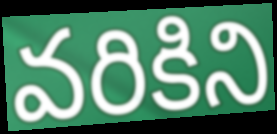
వరికిని